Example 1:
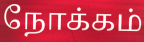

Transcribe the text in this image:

நோக்கம்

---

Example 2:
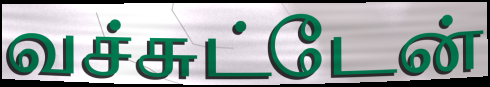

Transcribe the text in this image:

வச்சுட்டேன்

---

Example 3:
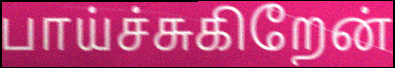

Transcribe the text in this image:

பாய்ச்சுகிறேன்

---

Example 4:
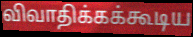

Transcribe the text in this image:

விவாதிக்கக்கூடிய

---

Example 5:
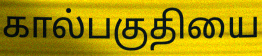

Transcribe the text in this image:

கால்பகுதியை